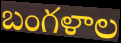
బంగళాల